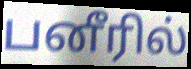
பனீரில்